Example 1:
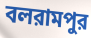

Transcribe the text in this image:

বলরামপুর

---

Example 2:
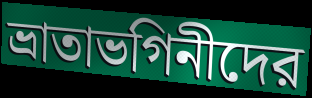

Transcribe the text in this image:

ভ্রাতাভগিনীদের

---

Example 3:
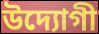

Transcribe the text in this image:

উদ্যোগী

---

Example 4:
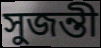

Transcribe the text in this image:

সুজন্তী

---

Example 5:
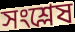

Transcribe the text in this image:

সংশ্লেষ